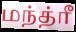
மந்த்ரீ